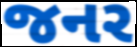
જનર